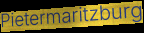
Pietermaritzburg